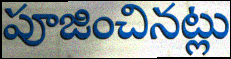
పూజించినట్లు